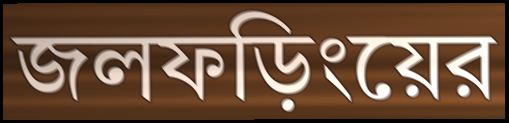
জলফড়িংয়ের